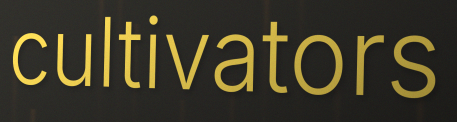
cultivators